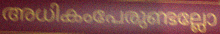
അധികംപേരുണ്ടല്ലോ